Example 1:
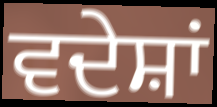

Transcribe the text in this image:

ਵਦੇਸ਼ਾਂ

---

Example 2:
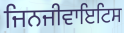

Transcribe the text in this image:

ਜਿਨਜੀਵਾਇਟਿਸ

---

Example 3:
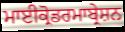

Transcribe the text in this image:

ਮਾਈਕ੍ਰੋਡਰਮਾਬ੍ਰੇਸ਼ਨ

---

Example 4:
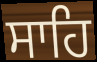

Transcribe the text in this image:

ਸਾਹਿ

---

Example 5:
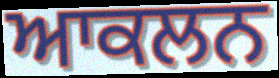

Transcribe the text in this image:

ਆਕਲਨ